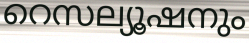
റെസല്യൂഷനും